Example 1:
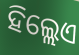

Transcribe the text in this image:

ହିଲ୍ଲେଏ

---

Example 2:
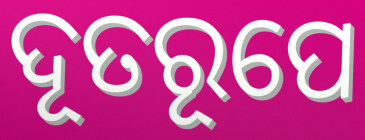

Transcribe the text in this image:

ଦୂତରୂପେ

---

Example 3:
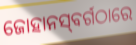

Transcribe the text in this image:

ଜୋହାନସ୍‌ବର୍ଗଠାରେ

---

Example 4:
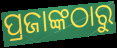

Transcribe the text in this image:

ପ୍ରଜାଙ୍କଠାରୁ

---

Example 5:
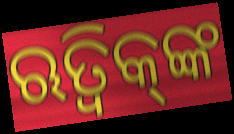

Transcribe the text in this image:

ଋତ୍ୱିକ୍‌ଙ୍କ